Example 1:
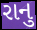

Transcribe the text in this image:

રાનુ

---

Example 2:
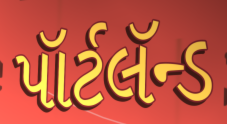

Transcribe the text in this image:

પૉર્ટલૅન્ડ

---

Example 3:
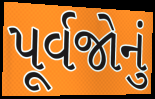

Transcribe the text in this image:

પૂર્વજોનું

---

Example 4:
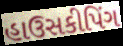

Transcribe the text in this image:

હાઉસકીપિંગ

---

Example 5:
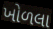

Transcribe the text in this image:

ખોળલા